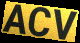
ACV